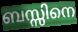
ബസ്സിനെ